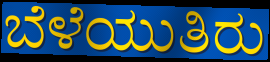
ಬೆಳೆಯುತಿರು